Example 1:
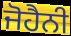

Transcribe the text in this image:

ਜੋਹੈਨੀ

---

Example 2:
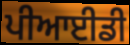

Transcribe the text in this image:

ਪੀਆਈਡੀ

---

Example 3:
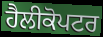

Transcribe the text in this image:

ਹੈਲੀਕੋਪਟਰ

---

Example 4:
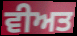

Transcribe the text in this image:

ਵੀਅਤ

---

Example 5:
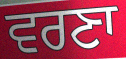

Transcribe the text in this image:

ਵਰਣਾ